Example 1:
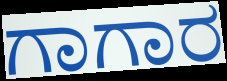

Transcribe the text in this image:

ಗಾಗಾರ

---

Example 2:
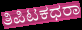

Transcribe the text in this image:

ತಿಪಿಟಕಧರಾ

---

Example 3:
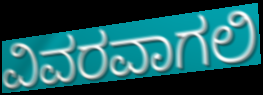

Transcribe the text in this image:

ವಿವರವಾಗಲಿ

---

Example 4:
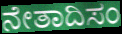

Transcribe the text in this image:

ನೇತಾದಿಸಂ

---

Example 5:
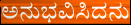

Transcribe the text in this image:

ಅನುಭವಿಸಿದನು